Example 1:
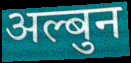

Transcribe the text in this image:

अल्बुन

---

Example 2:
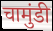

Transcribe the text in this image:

चामुंडी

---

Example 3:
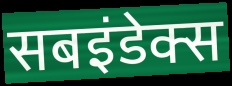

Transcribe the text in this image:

सबइंडेक्स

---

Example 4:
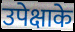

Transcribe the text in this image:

उपेक्षाके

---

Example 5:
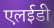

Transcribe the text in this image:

एलईडी